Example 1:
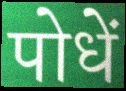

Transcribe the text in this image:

पोधें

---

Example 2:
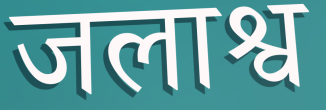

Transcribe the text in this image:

जलाश्व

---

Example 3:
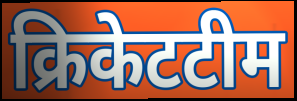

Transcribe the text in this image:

क्रिकेटटीम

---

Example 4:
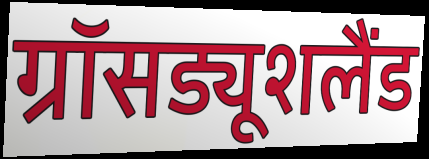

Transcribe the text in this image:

ग्रॉसड्यूशलैंड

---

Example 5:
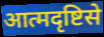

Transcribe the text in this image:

आत्मदृष्टिसे